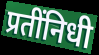
प्रतींनिधी